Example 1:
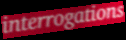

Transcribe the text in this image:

interrogations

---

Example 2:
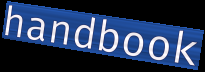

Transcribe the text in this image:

handbook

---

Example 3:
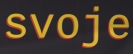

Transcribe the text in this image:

svoje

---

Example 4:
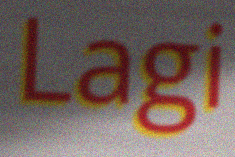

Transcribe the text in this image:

Lagi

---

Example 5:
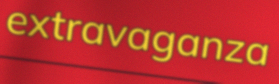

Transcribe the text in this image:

extravaganza